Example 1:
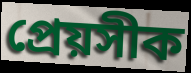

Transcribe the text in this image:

প্ৰেয়সীক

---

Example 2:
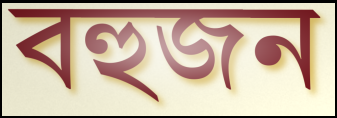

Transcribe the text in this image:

বহুজন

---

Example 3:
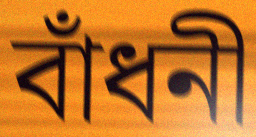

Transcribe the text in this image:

বাঁধনী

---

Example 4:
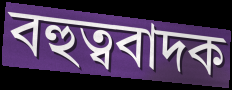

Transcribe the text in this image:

বহুত্ববাদক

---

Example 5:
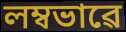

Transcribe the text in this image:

লম্বভাৱে